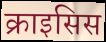
क्राइसिस